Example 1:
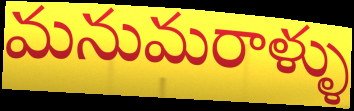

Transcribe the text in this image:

మనుమరాళ్ళు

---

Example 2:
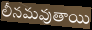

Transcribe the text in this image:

లీనమవుతాయి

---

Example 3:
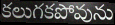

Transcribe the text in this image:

కలుగకపోవును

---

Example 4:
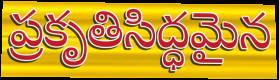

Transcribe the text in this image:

ప్రకృతిసిద్ధమైన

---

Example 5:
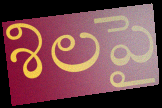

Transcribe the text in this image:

శిలపై